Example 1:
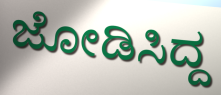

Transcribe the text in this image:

ಜೋಡಿಸಿದ್ದ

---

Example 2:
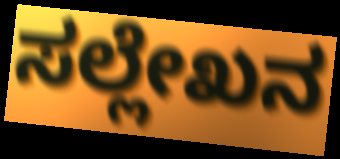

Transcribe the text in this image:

ಸಲ್ಲೇಖನ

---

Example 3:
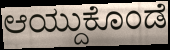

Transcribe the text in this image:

ಆಯ್ದುಕೊಂಡೆ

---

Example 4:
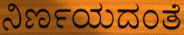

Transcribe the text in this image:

ನಿರ್ಣಯದಂತೆ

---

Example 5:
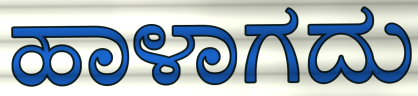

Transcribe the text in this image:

ಹಾಳಾಗದು